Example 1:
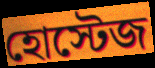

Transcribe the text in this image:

হোস্টেজ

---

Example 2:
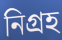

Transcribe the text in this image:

নিগ্রহ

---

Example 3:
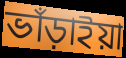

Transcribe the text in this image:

ভাঁড়াইয়া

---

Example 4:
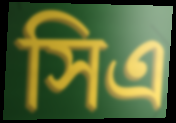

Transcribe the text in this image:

সিএ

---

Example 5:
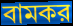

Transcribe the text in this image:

বামকর